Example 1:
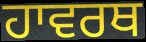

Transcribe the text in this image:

ਹਾਵਰਥ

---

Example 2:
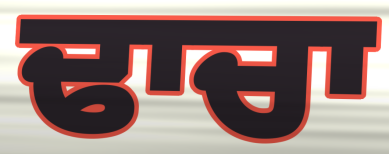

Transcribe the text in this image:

ਢਾਚਾ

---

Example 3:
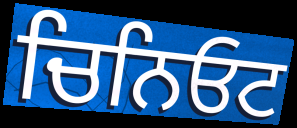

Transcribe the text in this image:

ਚਿਨਿਓਟ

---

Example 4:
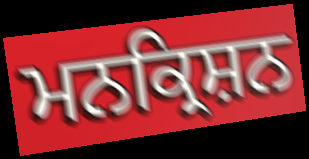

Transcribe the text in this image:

ਮਨਕ੍ਰਿਸ਼ਨ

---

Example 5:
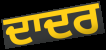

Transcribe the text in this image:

ਦਾਦਰ